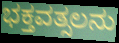
ಭಕ್ತವತ್ಸಲನು